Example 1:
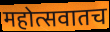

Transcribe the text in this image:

महोत्सवातच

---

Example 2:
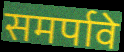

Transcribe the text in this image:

समर्पावे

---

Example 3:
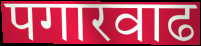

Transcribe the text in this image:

पगारवाढ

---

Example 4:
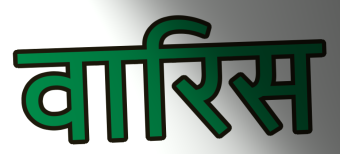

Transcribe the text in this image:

वारिस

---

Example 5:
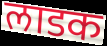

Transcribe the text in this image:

लाडक